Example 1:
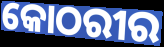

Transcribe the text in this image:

କୋଠରୀର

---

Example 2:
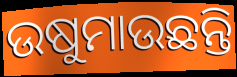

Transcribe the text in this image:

ଉଷୁମାଉଛନ୍ତି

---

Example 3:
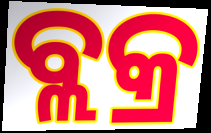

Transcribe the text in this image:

ବ୍ଲକ୍ର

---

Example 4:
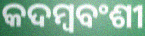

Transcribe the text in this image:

କଦମ୍ବବଂଶୀ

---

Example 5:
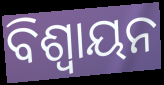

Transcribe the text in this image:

ବିଶ୍ୱାୟନ